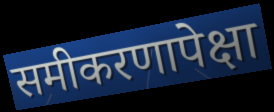
समीकरणापेक्षा